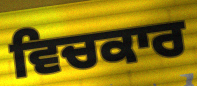
ਵਿਚਕਾਰ